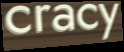
cracy